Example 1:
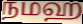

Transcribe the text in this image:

நமஹ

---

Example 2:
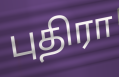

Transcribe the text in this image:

புதிரா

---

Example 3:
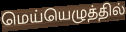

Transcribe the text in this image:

மெய்யெழுத்தில்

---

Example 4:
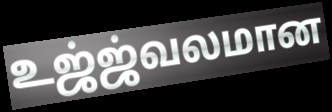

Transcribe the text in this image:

உஜ்ஜ்வலமான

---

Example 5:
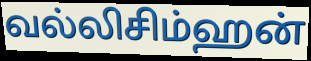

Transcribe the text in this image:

வல்லிசிம்ஹன்